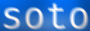
soto